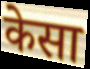
केसा